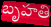
బృహతి